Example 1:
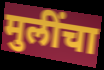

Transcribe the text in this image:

मुलींचा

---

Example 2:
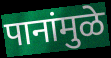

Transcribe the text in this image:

पानांमुळे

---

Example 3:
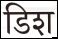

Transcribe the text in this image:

डिश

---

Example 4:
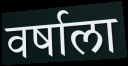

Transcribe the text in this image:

वर्षाला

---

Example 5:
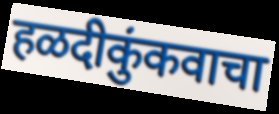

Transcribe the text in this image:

हळदीकुंकवाचा